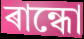
ৰান্ধো